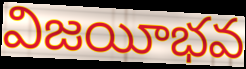
విజయీభవ